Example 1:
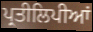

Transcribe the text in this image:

ਪ੍ਰਤੀਲਿਪੀਆਂ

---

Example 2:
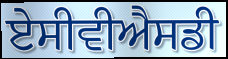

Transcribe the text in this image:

ਏਸੀਵੀਐਸਡੀ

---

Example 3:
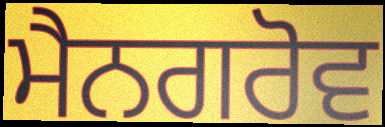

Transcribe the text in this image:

ਮੈਨਗਰੋਵ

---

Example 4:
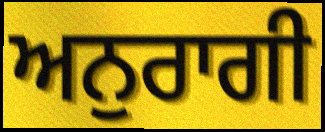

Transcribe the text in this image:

ਅਨੁਰਾਗੀ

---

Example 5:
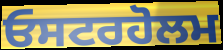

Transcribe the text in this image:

ਓਸਟਰਹੋਲਮ